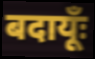
बदायूँः